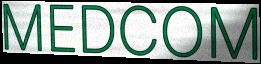
MEDCOM